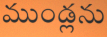
ముండ్లను